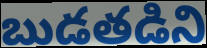
బుడతడిని